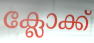
ക്ലോക്ക്